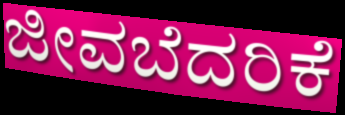
ಜೀವಬೆದರಿಕೆ